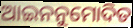
ଆଇନନୁମୋଦିତ